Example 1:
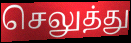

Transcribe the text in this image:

செலுத்து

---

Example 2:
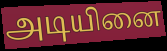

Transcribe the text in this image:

அடியினை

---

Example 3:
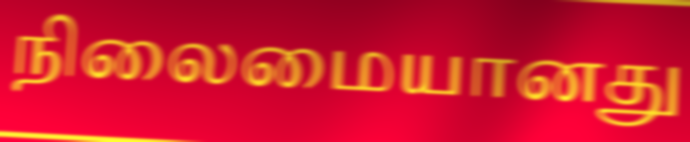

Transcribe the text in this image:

நிலைமையானது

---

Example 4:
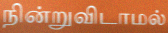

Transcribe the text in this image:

நின்றுவிடாமல்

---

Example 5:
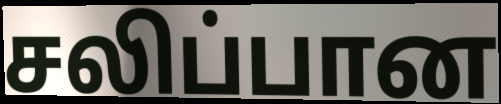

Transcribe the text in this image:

சலிப்பான